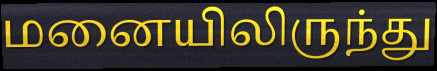
மனையிலிருந்து